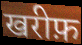
खरीफ़